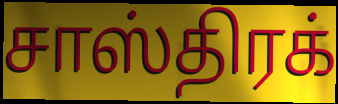
சாஸ்திரக்